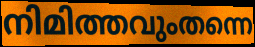
നിമിത്തവുംതന്നെ